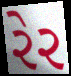
રેર